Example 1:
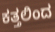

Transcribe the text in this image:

ಕತ್ತಲಿಂದ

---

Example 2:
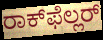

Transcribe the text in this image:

ರಾಕ್‌ಫೆಲ್ಲರ್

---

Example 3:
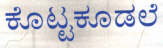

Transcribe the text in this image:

ಕೊಟ್ಟಕೂಡಲೆ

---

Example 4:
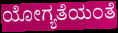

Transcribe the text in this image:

ಯೋಗ್ಯತೆಯಂತೆ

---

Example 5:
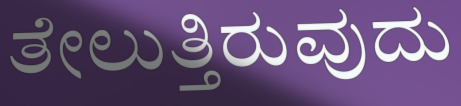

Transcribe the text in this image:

ತೇಲುತ್ತಿರುವುದು